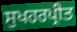
ਸੁਖਹਰਪ੍ਰੀਤ